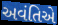
અવંતિએ